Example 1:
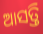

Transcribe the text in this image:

ଆସତ୍ତି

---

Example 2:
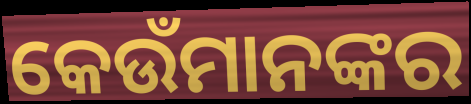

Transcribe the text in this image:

କେଉଁମାନଙ୍କର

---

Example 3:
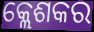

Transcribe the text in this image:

କ୍ଲେଶକର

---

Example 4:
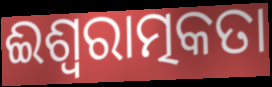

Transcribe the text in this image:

ଈଶ୍ଵରାତ୍ମକତା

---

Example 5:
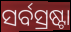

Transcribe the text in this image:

ସର୍ବସ୍ରଷ୍ଟା